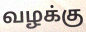
வழக்கு